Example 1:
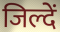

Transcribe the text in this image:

जिल्दें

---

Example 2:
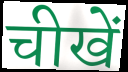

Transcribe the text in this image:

चीखें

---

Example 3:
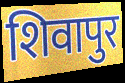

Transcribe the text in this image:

शिवापुर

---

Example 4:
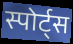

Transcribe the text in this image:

स्पोर्ट्स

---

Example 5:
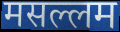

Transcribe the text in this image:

मसल्लम